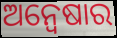
ଅନ୍ବେଷାର